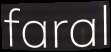
faral